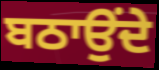
ਬਠਾਉਂਦੇ